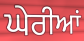
ਘੇਰੀਆਂ